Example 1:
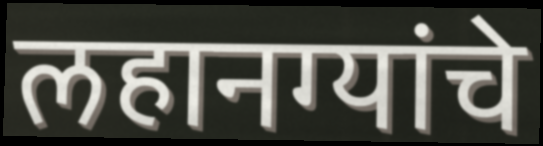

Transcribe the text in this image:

लहानग्यांचे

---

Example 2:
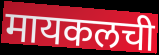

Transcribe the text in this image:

मायकलची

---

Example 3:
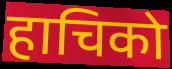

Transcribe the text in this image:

हाचिको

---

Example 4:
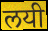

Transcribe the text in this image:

लयी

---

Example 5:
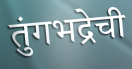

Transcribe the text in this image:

तुंगभद्रेची